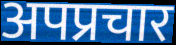
अपप्रचार